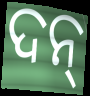
ଦନ୍